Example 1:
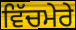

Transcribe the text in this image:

ਵਿੱਚਮੇਰੇ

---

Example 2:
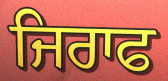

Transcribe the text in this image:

ਜਿਰਾਫ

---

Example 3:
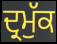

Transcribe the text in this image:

ਦ੍ਰਮੁੱਕ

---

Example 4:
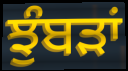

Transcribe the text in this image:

ਝੁੰਬੜਾਂ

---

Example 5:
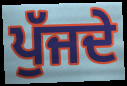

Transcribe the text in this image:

ਪੁੱਜਦੇ